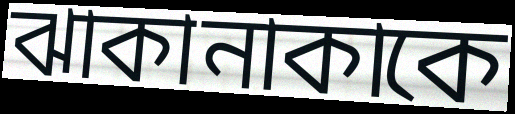
ঝাকানাকাকে